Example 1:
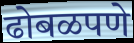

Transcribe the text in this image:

ढोबळपणे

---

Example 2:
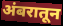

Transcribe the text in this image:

अंबरातून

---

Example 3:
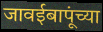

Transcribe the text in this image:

जावईबापूंच्या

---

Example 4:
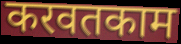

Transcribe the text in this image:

करवतकाम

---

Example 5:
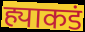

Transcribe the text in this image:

ह्याकडं